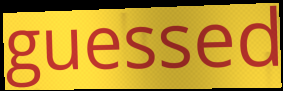
guessed